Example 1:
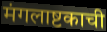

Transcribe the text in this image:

मंगलाष्टकाची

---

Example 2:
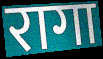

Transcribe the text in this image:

रागा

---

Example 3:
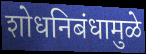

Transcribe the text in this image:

शोधनिबंधामुळे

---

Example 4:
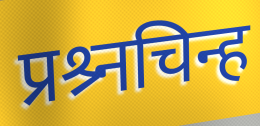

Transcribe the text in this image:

प्रश्र्नचिन्ह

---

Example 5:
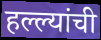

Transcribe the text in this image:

हल्ल्यांची